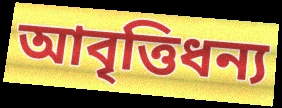
আবৃত্তিধন্য